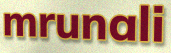
mrunali